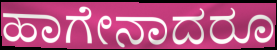
ಹಾಗೇನಾದರೂ